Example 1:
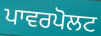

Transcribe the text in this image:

ਪਾਵਰਪੋਲਟ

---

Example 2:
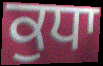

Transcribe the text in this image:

ਕੁਧਾ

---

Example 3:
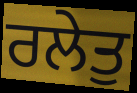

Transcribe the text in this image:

ਰਲੇਤੁ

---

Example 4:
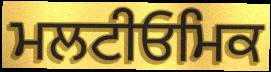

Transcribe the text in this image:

ਮਲਟੀਓਮਿਕ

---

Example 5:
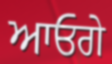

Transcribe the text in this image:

ਆਓਗੇ